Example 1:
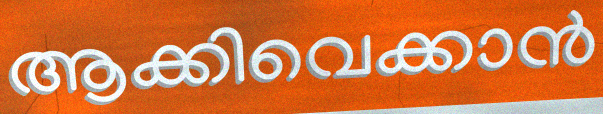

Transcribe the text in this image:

ആക്കിവെക്കാൻ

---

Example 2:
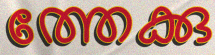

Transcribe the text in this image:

ത്തേക്കു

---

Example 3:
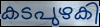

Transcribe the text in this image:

കടപുഴകി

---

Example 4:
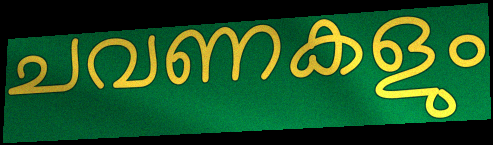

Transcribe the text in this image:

ചവണകളും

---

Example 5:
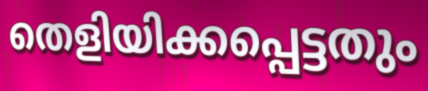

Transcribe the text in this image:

തെളിയിക്കപ്പെട്ടതും